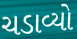
ચડાવ્યો